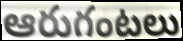
ఆరుగంటలు